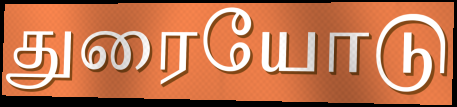
துரையோடு